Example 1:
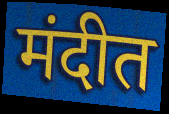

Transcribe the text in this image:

मंदीत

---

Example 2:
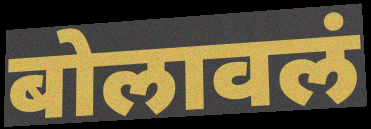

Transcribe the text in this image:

बोलावलं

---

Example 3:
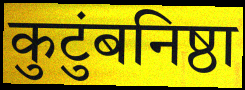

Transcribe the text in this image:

कुटुंबनिष्ठा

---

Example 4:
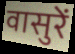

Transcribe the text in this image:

वासुरें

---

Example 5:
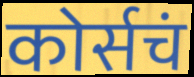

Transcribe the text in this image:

कोर्सचं